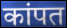
कांपत